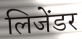
लिजेंडर